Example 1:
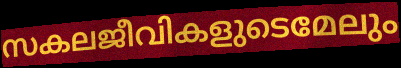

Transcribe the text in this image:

സകലജീവികളുടെമേലും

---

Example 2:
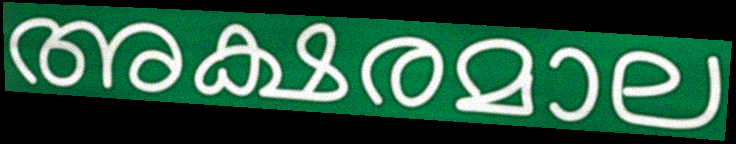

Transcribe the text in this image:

അക്ഷരമാല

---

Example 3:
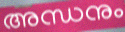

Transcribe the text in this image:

അന്ധനും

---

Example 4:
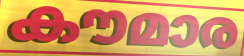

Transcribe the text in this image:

കൗമാര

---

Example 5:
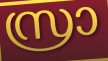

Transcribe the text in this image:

സ്രാ